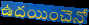
ఉదయించెనో